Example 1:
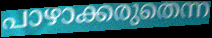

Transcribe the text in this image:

പാഴാക്കരുതെന്ന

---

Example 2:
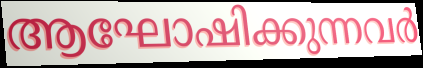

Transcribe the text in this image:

ആഘോഷിക്കുന്നവർ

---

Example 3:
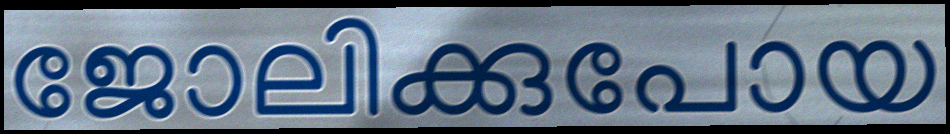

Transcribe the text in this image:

ജോലിക്കുപോയ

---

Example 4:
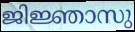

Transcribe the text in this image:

ജിജ്ഞാസു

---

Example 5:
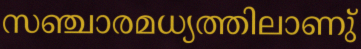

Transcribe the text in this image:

സഞ്ചാരമധ്യത്തിലാണു്